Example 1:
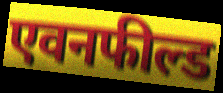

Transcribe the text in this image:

एवनफील्ड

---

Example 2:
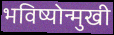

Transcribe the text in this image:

भविष्योन्मुखी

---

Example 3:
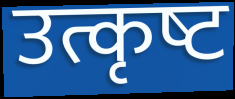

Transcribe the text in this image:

उत्कृष्‍ट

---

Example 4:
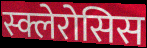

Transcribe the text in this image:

स्क्लेरोसिस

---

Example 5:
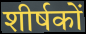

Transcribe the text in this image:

शीर्षकों